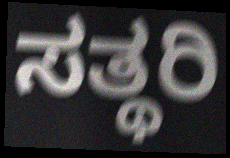
ಸತ್ಥರಿ